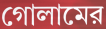
গোলামের